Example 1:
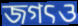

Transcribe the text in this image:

জগৎও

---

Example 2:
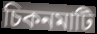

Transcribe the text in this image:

চিকনমাটি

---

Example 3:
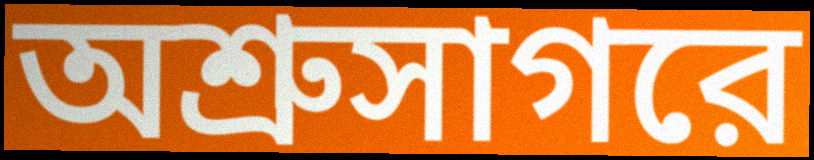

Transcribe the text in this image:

অশ্রুসাগরে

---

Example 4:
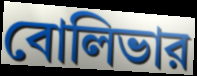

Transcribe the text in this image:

বোলিভার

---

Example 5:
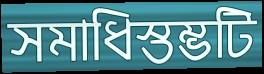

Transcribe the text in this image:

সমাধিস্তম্ভটি